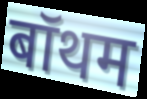
बॉथम